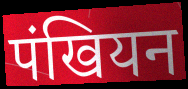
पंखियन